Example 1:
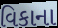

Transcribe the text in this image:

વિકાના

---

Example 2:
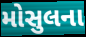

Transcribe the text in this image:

મોસુલના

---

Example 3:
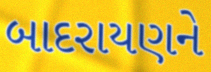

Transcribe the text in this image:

બાદરાયણને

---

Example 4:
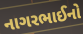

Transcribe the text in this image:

નાગરભાઈનો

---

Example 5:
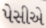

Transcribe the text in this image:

પેસીએ